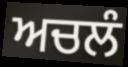
ਅਚਲੰ